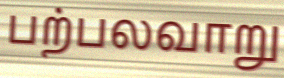
பற்பலவாறு